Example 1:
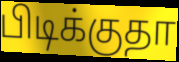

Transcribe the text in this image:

பிடிக்குதா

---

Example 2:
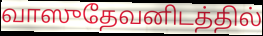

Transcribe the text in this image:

வாஸுதேவனிடத்தில்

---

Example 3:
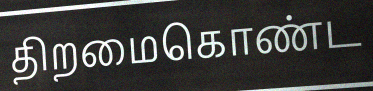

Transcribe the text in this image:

திறமைகொண்ட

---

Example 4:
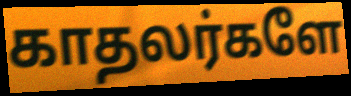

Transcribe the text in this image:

காதலர்களே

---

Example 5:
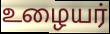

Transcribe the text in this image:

உழையர்